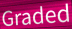
Graded